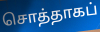
சொத்தாகப்